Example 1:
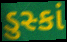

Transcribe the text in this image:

ડુસ્કાં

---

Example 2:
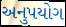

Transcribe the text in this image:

અનુપયોગ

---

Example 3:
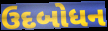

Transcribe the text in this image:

ઉદબોધન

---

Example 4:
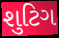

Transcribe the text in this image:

શુટિગ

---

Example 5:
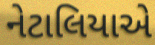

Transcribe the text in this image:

નેટાલિયાએ